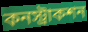
কনস্ট্রাকশন